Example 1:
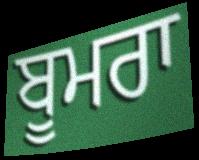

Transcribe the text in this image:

ਬੂਮਰਾ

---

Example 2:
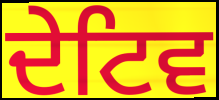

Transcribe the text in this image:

ਦੇਟਿਵ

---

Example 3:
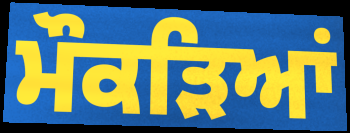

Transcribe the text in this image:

ਮੌਕੜਿਆਂ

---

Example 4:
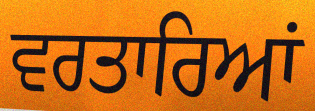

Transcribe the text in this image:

ਵਰਤਾਰਿਆਂ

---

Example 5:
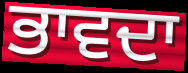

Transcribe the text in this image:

ਭਾਵਦਾ